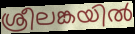
ശ്രീലങ്കയിൽ